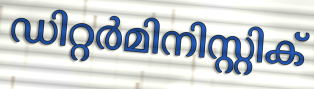
ഡിറ്റർമിനിസ്റ്റിക്